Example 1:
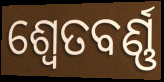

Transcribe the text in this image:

ଶ୍ୱେତବର୍ଣ୍ଣ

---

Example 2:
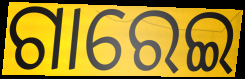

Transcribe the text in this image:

ଗାରେଇ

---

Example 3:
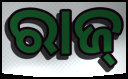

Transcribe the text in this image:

ରାଜ୍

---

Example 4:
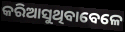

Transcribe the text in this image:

କରିଆସୁଥିବାବେଳେ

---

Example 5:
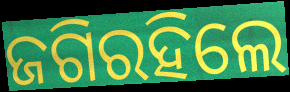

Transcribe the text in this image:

ଜଗିରହିଲେ